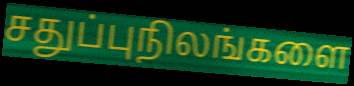
சதுப்புநிலங்களை